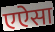
एऐसा